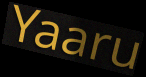
Yaaru